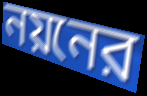
নয়নের